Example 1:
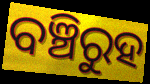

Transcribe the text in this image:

ବଞ୍ଚିରୁହ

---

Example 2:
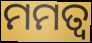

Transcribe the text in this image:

ମମତ୍ୱ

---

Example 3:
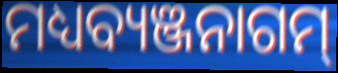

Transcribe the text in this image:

ମଧ୍ୟବ୍ୟଞ୍ଜନାଗମ୍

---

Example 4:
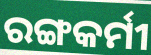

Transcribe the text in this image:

ରଙ୍ଗକର୍ମୀ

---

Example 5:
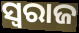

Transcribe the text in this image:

ସ୍ଵରାଜ